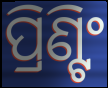
ପ୍ରିଣ୍ଟିଂ